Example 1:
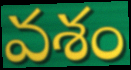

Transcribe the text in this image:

వశం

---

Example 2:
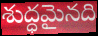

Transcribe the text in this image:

శుద్ధమైనది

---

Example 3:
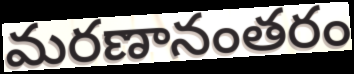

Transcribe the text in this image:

మరణానంతరం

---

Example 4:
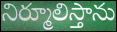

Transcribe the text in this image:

నిర్మూలిస్తాను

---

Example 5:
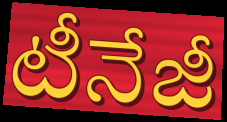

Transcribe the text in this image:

టీనేజీ